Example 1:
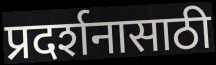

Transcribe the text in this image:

प्रदर्शनासाठी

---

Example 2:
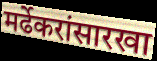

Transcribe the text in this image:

मर्ढेकरांसारखा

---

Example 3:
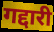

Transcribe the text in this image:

गद्दारी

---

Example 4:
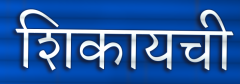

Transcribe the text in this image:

शिकायची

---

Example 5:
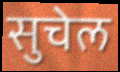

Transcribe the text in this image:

सुचेल